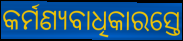
କର୍ମଣ୍ୟବାଧିକାରସ୍ତେ